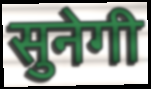
सुनेगी